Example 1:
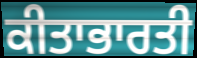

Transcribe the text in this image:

ਕੀਤਾਭਾਰਤੀ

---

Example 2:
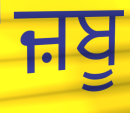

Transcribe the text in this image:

ਜ਼ਬੂ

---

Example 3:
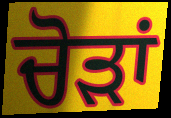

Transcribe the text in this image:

ਚੋੜਾਂ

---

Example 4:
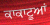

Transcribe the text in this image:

ਕਾਕਾਟੂਆਂ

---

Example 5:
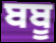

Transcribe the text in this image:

ਬਬੂ